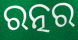
ରତ୍ନର